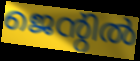
ജെന്റിൽ